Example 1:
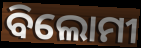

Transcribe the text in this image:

ବିଲୋମୀ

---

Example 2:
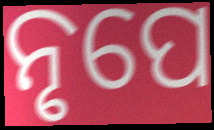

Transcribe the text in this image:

ନୃପେ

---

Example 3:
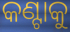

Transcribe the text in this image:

କଣ୍ଟାକୁ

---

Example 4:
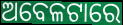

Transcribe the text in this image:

ଅବେଳଟାରେ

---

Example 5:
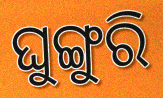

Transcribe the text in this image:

ଘୁଙ୍ଗୁରି